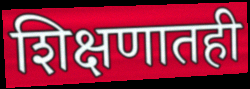
शिक्षणातही